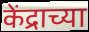
केंद्राच्या